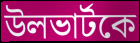
উলভার্টকে